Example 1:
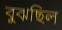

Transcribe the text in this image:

বুঝছিল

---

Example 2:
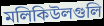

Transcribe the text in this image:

মলিকিউলগুলি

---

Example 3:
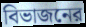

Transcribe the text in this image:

বিভাজনের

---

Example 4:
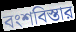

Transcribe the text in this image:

বংশবিস্তার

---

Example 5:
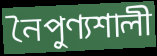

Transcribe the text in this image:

নৈপুণ্যশালী